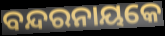
ବନ୍ଦରନାୟକେ